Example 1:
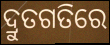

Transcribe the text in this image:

ଦ୍ରୁତଗତିରେ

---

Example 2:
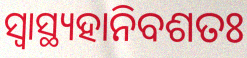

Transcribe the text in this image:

ସ୍ୱାସ୍ଥ୍ୟହାନିବଶତଃ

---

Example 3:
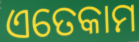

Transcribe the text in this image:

ଏତେକାମ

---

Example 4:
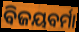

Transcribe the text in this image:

ବିଜୟବର୍ମା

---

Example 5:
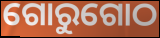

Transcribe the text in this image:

ଗୋରୁଗୋଠ